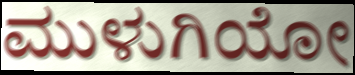
ಮುಳುಗಿಯೋ